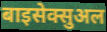
बाइसेक्सुअल